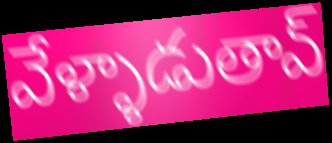
వేళ్ళాడుతావ్